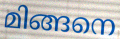
മിങ്ങനെ